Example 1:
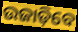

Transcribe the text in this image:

ଉଜାଡ଼ିବେ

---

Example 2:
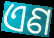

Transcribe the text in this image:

ଏଣ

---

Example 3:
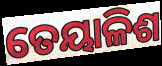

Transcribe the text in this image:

ତେୟାଳିଶ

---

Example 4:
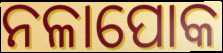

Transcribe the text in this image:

ନଳାପୋକ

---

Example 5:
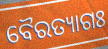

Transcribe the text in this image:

ବୈରତ୍ୟାଗଃ